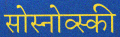
सोस्नोव्स्की